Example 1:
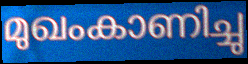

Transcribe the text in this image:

മുഖംകാണിച്ചു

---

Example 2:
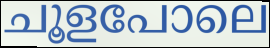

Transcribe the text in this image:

ചൂളപോലെ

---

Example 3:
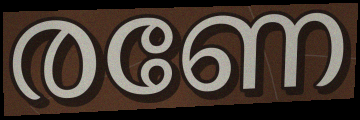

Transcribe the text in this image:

രണേ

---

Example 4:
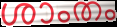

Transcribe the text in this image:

ശാംതം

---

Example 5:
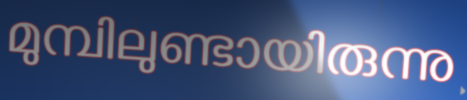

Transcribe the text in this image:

മുമ്പിലുണ്ടായിരുന്നു